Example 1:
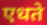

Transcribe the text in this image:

एधते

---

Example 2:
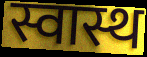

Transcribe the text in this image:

स्वास्थ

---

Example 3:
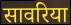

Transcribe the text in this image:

सावरिया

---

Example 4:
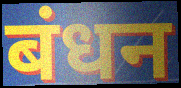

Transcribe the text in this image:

बंधन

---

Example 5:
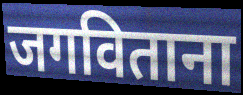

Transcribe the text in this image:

जगविताना